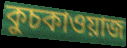
কুচকাওয়াজ